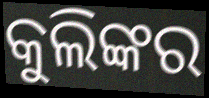
କୁଲିଙ୍କର